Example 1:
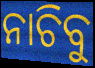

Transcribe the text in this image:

ନାଚିବୁ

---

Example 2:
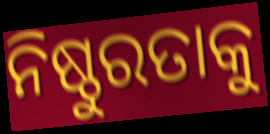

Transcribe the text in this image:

ନିଷ୍ଠୁରତାକୁ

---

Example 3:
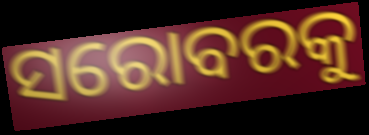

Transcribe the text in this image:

ସରୋବରକୁ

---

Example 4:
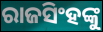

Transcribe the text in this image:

ରାଜସିଂହଙ୍କୁ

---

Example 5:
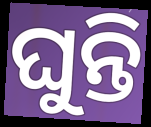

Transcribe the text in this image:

ଘୁନ୍ତି